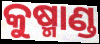
କୁଷ୍ମାଣ୍ଡ